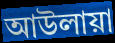
আউলায়া